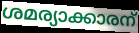
ശമര്യാക്കാരന്